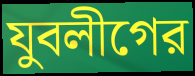
যুবলীগের